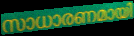
സാധാരണമായി